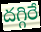
దగ్గిరే